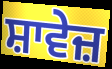
ਸ਼ਾਵੇਜ਼